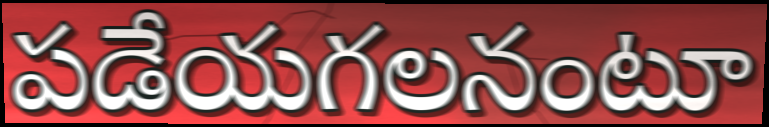
పడేయగలనంటూ